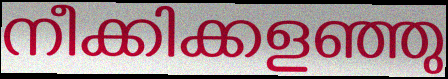
നീക്കിക്കളഞ്ഞു